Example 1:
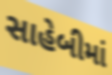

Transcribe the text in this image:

સાહેબીમાં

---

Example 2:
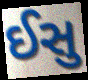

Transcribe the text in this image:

ઈસુ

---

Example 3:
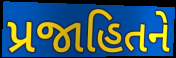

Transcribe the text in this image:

પ્રજાહિતને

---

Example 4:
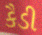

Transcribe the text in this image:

કૈડી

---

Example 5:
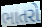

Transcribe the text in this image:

ભાતરો